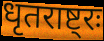
धृतराष्ट्रः